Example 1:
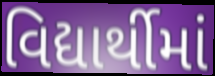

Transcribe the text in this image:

વિદ્યાર્થીમાં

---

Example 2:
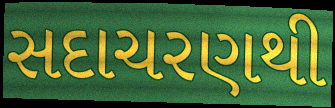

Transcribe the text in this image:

સદાચરણથી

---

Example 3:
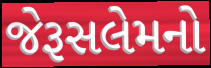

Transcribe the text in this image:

જેરૂસલેમનો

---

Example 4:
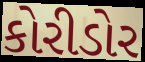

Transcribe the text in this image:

કોરીડોર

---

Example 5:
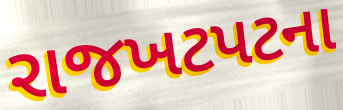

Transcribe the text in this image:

રાજખટપટના